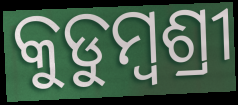
କୁଡୁମ୍ବଶ୍ରୀ